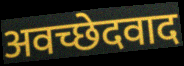
अवच्छेदवाद